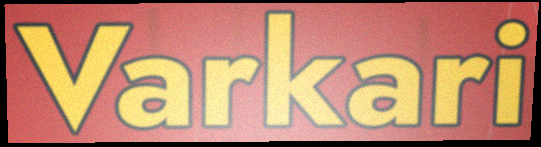
Varkari